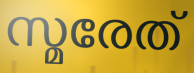
സ്മരേത്